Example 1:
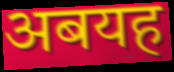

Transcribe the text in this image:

अबयह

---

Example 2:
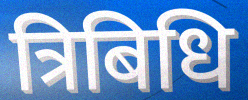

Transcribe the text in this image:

त्रिबिधि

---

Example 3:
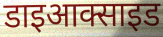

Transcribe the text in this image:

डाइआक्साइड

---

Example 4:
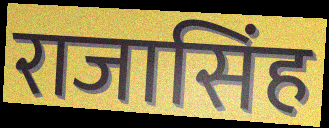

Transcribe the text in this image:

राजासिंह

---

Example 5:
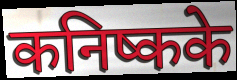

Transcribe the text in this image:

कनिष्कके